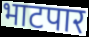
भाटपार